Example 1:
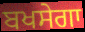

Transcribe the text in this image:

ਬਖਸੇਗਾ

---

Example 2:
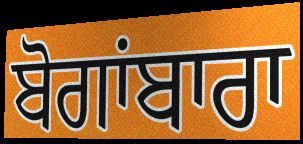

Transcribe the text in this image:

ਬੋਗਾਂਬਾਰਾ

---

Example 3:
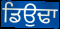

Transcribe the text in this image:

ਡਿਉਢਾ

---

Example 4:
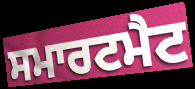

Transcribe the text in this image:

ਸਮਾਰਟਮੈਟ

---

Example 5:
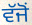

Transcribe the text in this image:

ਵੱਜੋਂ